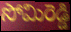
సోమిరెడ్డి